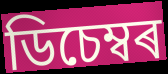
ডিচেম্বৰ